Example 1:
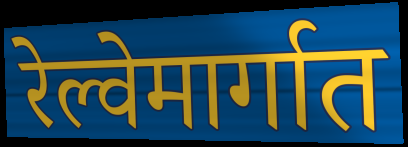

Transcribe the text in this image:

रेल्वेमार्गात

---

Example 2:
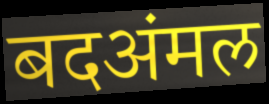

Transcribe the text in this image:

बदअंमल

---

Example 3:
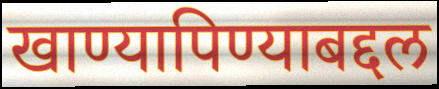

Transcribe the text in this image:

खाण्यापिण्याबद्दल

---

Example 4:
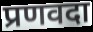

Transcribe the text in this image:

प्रणवदा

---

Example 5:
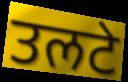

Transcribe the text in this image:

उलटे